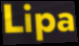
Lipa